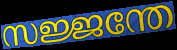
സജ്ജന്തേ